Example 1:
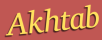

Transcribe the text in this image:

Akhtab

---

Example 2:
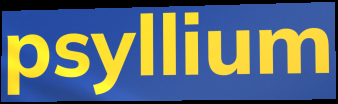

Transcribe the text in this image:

psyllium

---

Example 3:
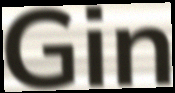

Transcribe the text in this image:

Gin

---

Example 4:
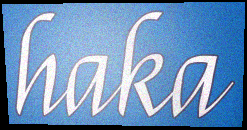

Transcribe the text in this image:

haka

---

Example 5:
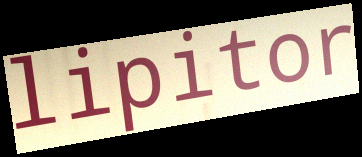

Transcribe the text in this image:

lipitor